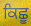
ਕਿਛੂ